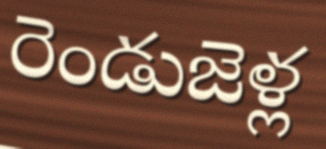
రెండుజెళ్ల